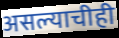
असल्याचीही